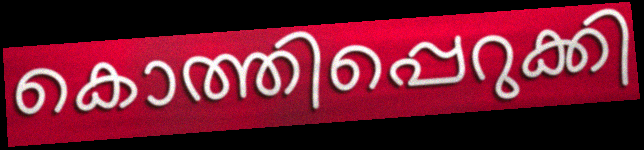
കൊത്തിപ്പെറുക്കി